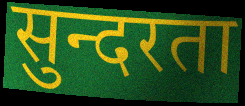
सुन्दरता